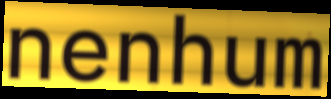
nenhum